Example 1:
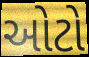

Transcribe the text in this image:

ઓટો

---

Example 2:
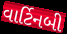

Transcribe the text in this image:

વાર્ટિનબી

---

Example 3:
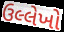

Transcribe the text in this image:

ઉલ્લેખો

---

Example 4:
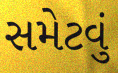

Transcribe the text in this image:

સમેટવું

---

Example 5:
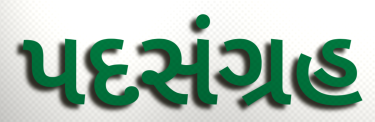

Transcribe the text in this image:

પદસંગ્રહ